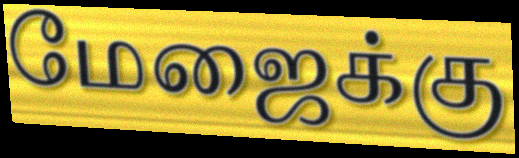
மேஜைக்கு